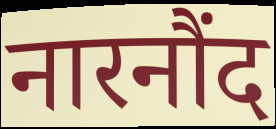
नारनौंद